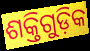
ଶକ୍ତିଗୁଡ଼ିକ